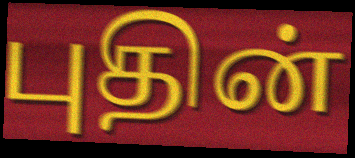
புதின்